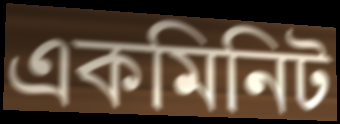
একমিনিট